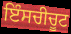
ਇੰਸਚੀਚੂਟ